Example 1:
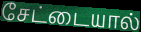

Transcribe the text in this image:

சேட்டையால்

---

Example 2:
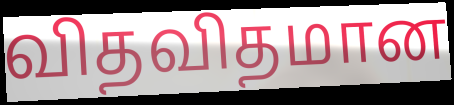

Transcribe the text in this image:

விதவிதமான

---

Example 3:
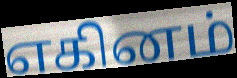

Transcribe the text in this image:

எகினம்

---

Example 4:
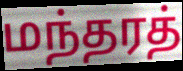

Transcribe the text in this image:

மந்தரத்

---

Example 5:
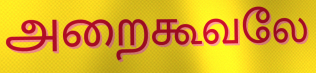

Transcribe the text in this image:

அறைகூவலே